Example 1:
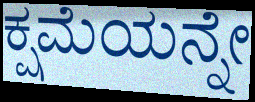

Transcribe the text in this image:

ಕ್ಷಮೆಯನ್ನೇ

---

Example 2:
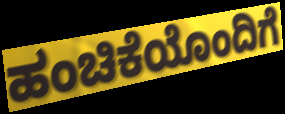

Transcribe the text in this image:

ಹಂಚಿಕೆಯೊಂದಿಗೆ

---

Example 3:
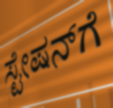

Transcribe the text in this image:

ಸ್ಟೇಷನ್‌ಗೆ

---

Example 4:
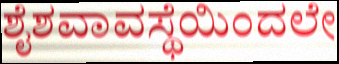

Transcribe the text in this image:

ಶೈಶವಾವಸ್ಥೆಯಿಂದಲೇ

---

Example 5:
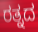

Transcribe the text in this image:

ರತ್ನದ